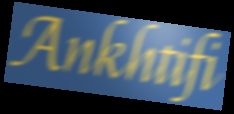
Ankhtifi